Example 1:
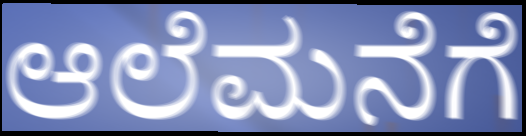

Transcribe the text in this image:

ಆಲೆಮನೆಗೆ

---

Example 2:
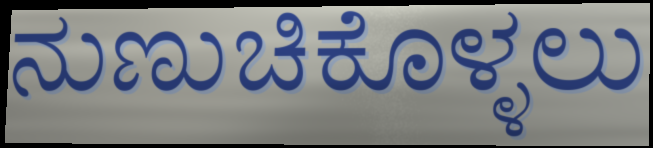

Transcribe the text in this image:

ನುಣುಚಿಕೊಳ್ಳಲು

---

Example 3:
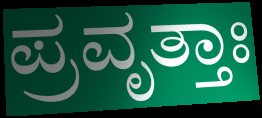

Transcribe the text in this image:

ಪ್ರವೃತ್ತಾಃ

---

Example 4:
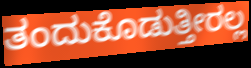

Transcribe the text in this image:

ತಂದುಕೊಡುತ್ತೀರಲ್ಲ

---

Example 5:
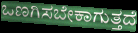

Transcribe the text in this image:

ಒಣಗಿಸಬೇಕಾಗುತ್ತದೆ